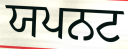
ਯਪਨਟ